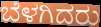
ಬೆಳಗಿದರು